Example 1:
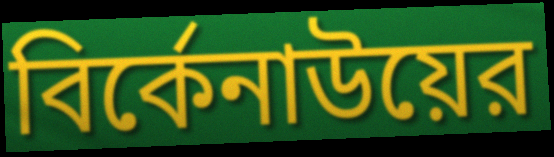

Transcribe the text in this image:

বির্কেনাউয়ের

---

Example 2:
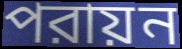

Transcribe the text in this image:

পরায়ন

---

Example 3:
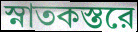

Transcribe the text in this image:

স্নাতকস্তরে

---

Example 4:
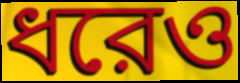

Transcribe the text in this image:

ধরেও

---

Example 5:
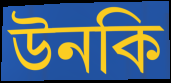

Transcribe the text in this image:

উনকি